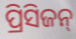
ପ୍ରିସିଜନ୍